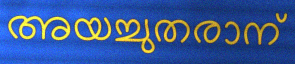
അയച്ചുതരാന്